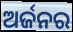
ଅର୍ଜନର